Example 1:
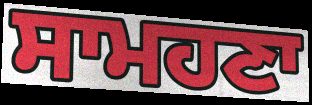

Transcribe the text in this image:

ਸਾਮਹਣਾ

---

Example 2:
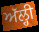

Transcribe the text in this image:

ਅੱਲ੍ਹੀ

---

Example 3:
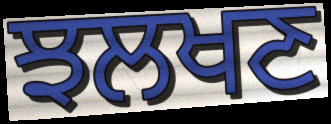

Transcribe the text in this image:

ਝਲਖਣ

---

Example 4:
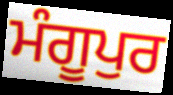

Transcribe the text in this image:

ਮੰਗੂਪੁਰ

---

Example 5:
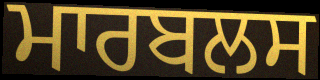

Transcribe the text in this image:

ਮਾਰਬਲਸ